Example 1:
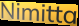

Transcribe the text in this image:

Nimitta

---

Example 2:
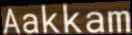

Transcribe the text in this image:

Aakkam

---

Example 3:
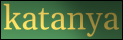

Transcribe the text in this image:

katanya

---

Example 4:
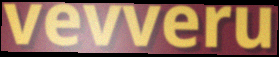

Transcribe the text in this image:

vevveru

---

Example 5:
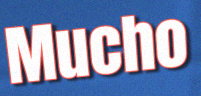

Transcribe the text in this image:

Mucho